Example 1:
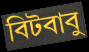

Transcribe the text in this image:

বিটবাবু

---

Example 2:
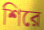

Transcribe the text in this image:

শিরে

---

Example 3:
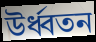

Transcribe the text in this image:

উর্ধ্বতন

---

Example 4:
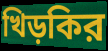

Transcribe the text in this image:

খিড়কির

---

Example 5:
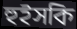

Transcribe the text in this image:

হুইসকি